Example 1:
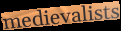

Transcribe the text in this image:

medievalists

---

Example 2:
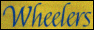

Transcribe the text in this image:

Wheelers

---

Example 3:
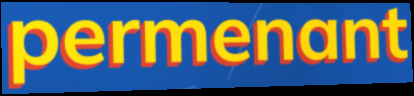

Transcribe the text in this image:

permenant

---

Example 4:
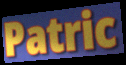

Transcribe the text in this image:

Patric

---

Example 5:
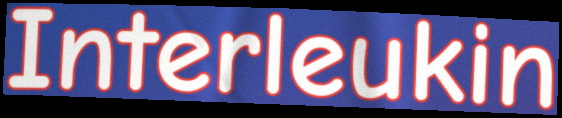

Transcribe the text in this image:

Interleukin